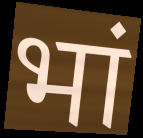
भां